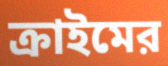
ক্রাইমের